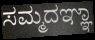
ಸಮ್ಮದಞ್ಞಾ